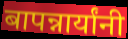
बापन्नार्यांनी